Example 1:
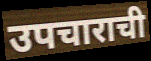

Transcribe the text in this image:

उपचाराची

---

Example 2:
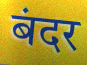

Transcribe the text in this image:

बंदर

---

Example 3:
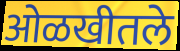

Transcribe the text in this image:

ओळखीतले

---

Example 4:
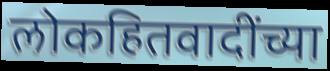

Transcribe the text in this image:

लोकहितवादींच्या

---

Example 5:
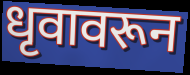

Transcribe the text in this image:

धृवावरून